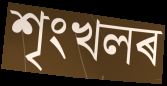
শৃংখলৰ